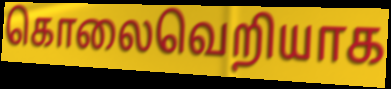
கொலைவெறியாக